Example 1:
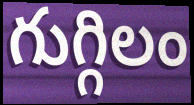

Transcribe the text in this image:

గుగ్గిలం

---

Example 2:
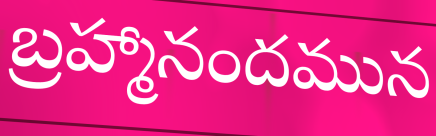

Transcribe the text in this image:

బ్రహ్మానందమున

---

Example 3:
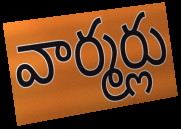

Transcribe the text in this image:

వార్మర్లు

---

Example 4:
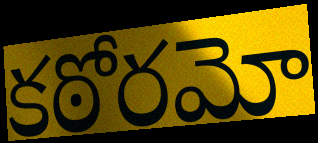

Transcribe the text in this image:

కఠోరమో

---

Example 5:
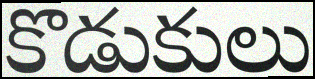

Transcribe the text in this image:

కొడుకులు